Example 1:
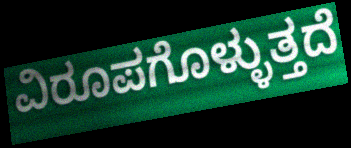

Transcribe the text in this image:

ವಿರೂಪಗೊಳ್ಳುತ್ತದೆ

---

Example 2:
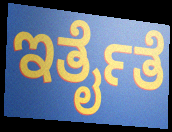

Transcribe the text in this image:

ಇರ್ತೈತೆ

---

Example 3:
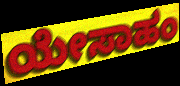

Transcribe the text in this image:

ಯೇಸಾಹಂ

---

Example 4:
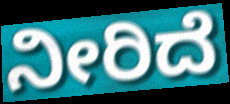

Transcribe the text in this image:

ನೀರಿದೆ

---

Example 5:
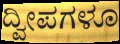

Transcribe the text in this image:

ದ್ವೀಪಗಳೂ